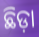
ଛିଡ଼ା